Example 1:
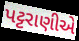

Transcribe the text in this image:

પટ્ટરાણીએ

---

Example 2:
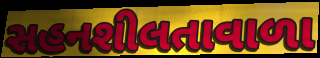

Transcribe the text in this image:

સહનશીલતાવાળા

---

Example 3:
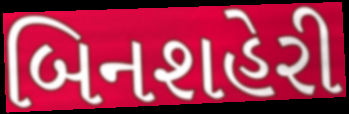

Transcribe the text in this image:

બિનશહેરી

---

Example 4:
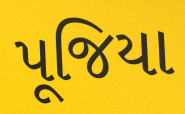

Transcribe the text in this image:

પૂજિયા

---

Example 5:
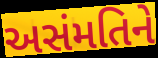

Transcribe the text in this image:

અસંમતિને